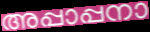
അപ്പാപ്പനാ